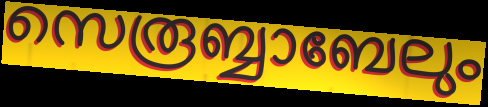
സെരൂബ്ബാബേലും